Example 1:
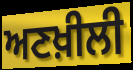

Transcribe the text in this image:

ਅਣਖ਼ੀਲੀ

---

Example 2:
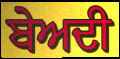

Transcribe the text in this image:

ਬੇਅਦੀ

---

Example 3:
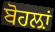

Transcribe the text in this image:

ਬੋਹਲ਼ਾਂ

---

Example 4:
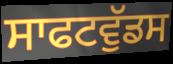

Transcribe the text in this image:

ਸਾਫਟਵੁੱਡਸ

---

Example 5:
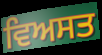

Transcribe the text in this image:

ਵਿਅਸਤ